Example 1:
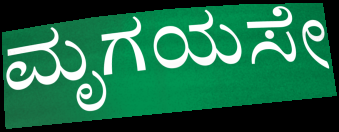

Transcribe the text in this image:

ಮೃಗಯಸೇ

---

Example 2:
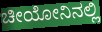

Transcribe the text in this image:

ಚೀಯೋನಿನಲ್ಲಿ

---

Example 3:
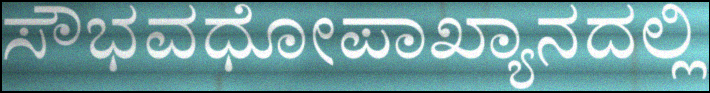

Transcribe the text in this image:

ಸೌಭವಧೋಪಾಖ್ಯಾನದಲ್ಲಿ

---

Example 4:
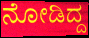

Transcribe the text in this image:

ನೋಡಿದ್ದ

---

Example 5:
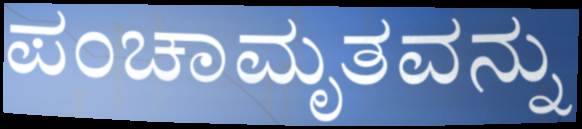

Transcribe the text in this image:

ಪಂಚಾಮೃತವನ್ನು